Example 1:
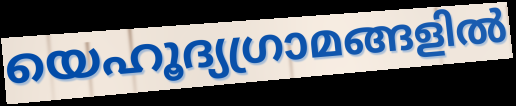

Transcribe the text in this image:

യെഹൂദ്യഗ്രാമങ്ങളിൽ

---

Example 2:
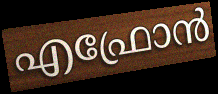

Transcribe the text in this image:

എഫ്രോൻ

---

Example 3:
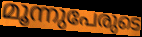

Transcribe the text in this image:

മൂന്നുപേരുടെ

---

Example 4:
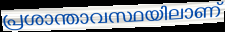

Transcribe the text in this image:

പ്രശാന്താവസ്ഥയിലാണ്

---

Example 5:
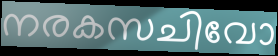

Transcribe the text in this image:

നരകസചിവോ